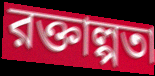
রক্তাল্পতা